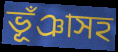
ভূঁঞাসহ